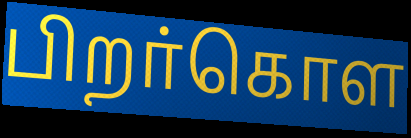
பிறர்கொள